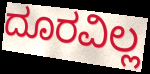
ದೂರವಿಲ್ಲ